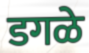
डगळे